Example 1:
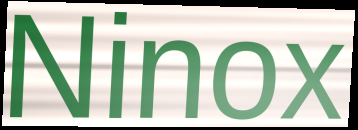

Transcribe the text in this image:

Ninox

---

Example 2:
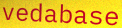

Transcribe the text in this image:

vedabase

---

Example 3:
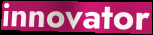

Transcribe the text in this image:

innovator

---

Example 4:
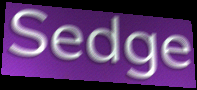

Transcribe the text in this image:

Sedge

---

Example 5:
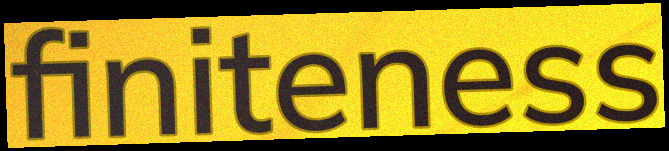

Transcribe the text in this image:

finiteness